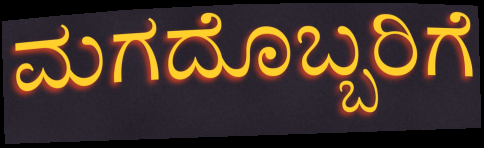
ಮಗದೊಬ್ಬರಿಗೆ